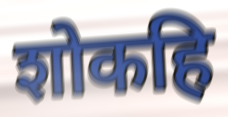
शोकहि